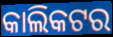
କାଲିକଟର